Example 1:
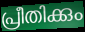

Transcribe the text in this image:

പ്രീതിക്കും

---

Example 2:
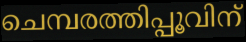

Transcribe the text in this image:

ചെമ്പരത്തിപ്പൂവിന്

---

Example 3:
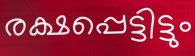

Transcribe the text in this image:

രക്ഷപ്പെട്ടിട്ടും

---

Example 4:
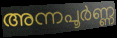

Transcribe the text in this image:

അന്നപൂർണ്ണ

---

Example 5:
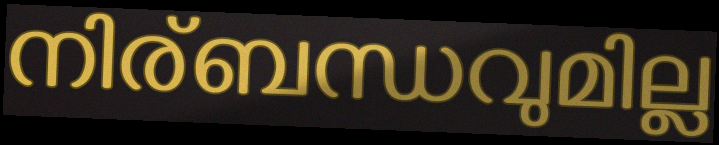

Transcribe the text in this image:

നിര്ബന്ധവുമില്ല